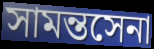
সামন্তসেনা